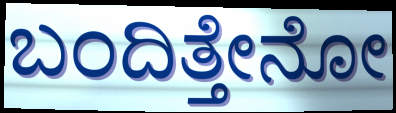
ಬಂದಿತ್ತೇನೋ